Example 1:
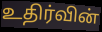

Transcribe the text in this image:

உதிர்வின்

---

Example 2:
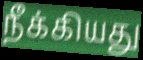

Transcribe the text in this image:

நீக்கியது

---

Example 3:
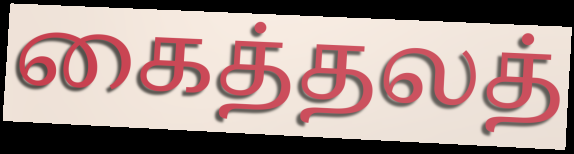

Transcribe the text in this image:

கைத்தலத்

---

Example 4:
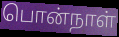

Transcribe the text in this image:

பொன்நாள்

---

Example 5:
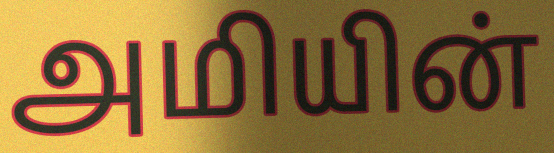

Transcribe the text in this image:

அமியின்